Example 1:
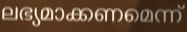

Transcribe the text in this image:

ലഭ്യമാക്കണമെന്ന്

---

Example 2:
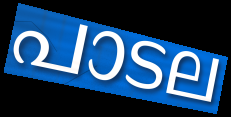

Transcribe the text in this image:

പാടല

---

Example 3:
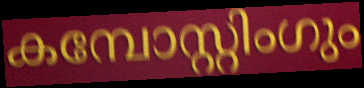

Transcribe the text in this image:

കമ്പോസ്റ്റിംഗും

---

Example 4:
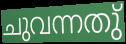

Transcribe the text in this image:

ചുവന്നതു്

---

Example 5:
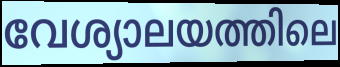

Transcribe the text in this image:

വേശ്യാലയത്തിലെ